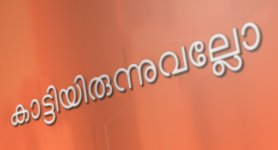
കാട്ടിയിരുന്നുവല്ലോ